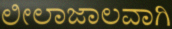
ಲೀಲಾಜಾಲವಾಗಿ